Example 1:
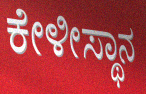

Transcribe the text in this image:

ಕೇಳೀಸ್ಥಾನ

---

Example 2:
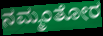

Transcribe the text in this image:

ನಮ್ಮಂತೋರ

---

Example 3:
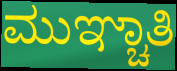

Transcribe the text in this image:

ಮುಞ್ಚಾತಿ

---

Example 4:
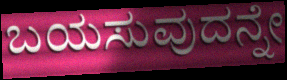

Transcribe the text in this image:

ಬಯಸುವುದನ್ನೇ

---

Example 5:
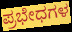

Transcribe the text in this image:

ಪ್ರಭೇಧಗಳ